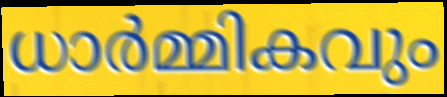
ധാർമ്മികവും